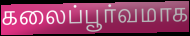
கலைப்பூர்வமாக